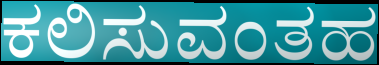
ಕಲಿಸುವಂತಹ